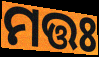
ମତ୍ତଃ